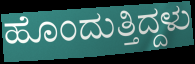
ಹೊಂದುತ್ತಿದ್ದಳು